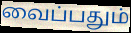
வைப்பதும்